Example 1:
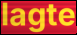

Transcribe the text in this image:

lagte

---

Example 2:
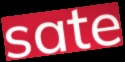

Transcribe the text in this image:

sate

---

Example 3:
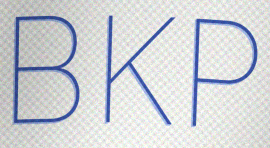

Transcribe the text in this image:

BKP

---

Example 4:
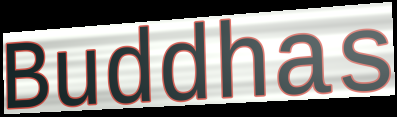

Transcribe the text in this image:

Buddhas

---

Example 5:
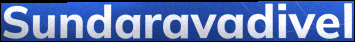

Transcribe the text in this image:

Sundaravadivel